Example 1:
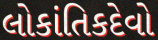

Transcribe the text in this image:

લોકાંતિકદેવો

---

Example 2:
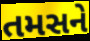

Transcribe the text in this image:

તમસને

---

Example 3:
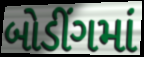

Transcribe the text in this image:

બોડીંગમાં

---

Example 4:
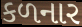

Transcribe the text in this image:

કળનાર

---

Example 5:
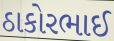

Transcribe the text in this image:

ઠાકોરભાઈ